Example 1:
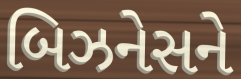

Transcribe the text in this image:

બિઝનેસને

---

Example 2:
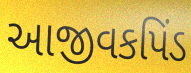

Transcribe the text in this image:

આજીવકપિંડ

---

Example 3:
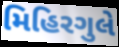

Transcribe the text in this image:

મિહિરગુલે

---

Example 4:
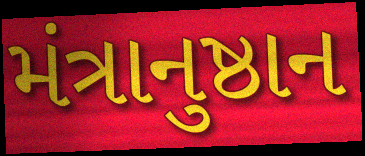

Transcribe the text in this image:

મંત્રાનુષ્ઠાન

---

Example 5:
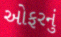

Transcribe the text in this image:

ઓફરનું